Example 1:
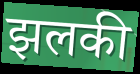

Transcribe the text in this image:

झलकी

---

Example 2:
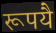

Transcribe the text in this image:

रूपयै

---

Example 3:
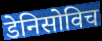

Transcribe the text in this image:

डेनिसोविच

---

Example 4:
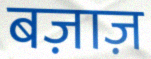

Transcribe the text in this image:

बज़ाज़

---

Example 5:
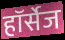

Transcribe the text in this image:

हॉर्सेज